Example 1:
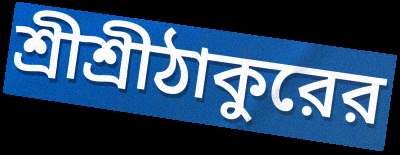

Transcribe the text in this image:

শ্রীশ্রীঠাকুরের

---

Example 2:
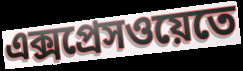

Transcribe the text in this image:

এক্সপ্রেসওয়েতে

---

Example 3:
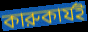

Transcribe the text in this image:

কারুকার্যই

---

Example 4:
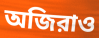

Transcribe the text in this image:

অজিরাও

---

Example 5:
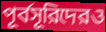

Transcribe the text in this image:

পূর্বসূরিদেরও